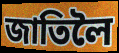
জাতিলৈ